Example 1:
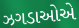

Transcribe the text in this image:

ઝગડાઓએ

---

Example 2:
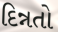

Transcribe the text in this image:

દિન્નતો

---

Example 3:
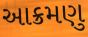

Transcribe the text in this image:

આક્રમણુ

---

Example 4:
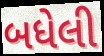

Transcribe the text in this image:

બધેલી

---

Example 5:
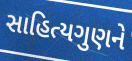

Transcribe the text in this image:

સાહિત્યગુણને